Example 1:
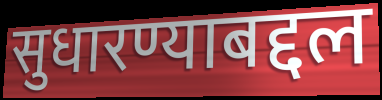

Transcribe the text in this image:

सुधारण्याबद्दल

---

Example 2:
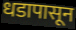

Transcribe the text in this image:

धडापासून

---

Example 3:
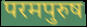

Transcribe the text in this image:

परमपुरुष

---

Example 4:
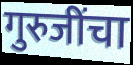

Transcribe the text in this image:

गुरुजींचा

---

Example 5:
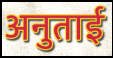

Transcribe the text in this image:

अनुताई